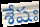
శేషః